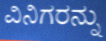
ವಿನಿಗರನ್ನು